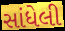
સાંધેલી